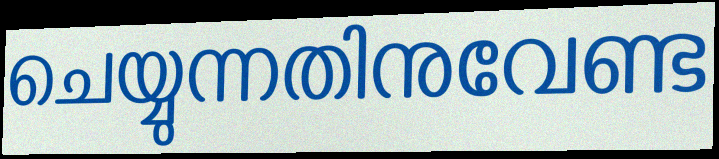
ചെയ്യുന്നതിനുവേണ്ട